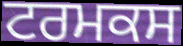
ਟਰਮਕਸ